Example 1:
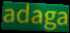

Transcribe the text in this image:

adaga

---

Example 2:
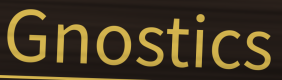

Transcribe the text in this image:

Gnostics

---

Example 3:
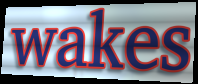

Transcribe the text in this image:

wakes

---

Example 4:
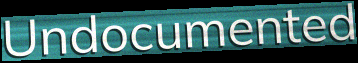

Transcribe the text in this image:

Undocumented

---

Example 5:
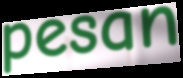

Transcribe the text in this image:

pesan